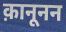
क़ानूनन